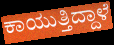
ಕಾಯುತ್ತಿದ್ದಾಳೆ